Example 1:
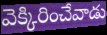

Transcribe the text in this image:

వెక్కిరించేవాడు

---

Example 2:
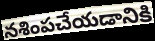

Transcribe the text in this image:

నశింపచేయడానికి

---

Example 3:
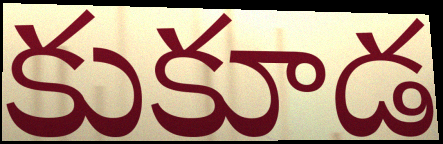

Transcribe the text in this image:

కుకూడ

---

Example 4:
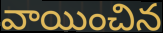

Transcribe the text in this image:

వాయించిన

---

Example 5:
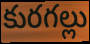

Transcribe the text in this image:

కురగల్లు